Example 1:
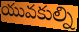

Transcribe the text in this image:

యువకుల్ని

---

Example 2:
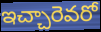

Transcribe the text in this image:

ఇచ్చారెవరో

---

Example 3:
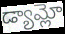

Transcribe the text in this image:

డ్యామ్లో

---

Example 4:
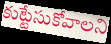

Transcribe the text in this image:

కుట్టేసుకోవాలని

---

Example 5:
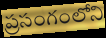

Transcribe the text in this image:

ప్రసంగంలోని